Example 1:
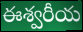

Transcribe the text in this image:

ఈశ్వరీయ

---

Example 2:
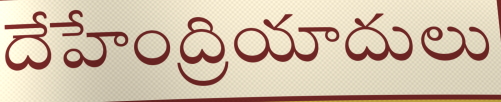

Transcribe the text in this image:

దేహేంద్రియాదులు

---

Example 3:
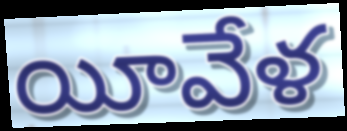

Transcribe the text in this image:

యీవేళ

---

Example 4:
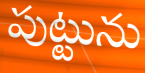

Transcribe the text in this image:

పుట్టును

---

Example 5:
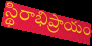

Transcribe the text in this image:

స్థిరాభిప్రాయం